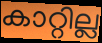
കാറ്റില്ല